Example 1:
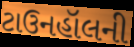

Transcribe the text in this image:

ટાઉનહૉલની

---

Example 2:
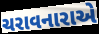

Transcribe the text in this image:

ચરાવનારાએ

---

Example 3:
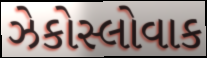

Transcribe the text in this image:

ઝેકોસ્લોવાક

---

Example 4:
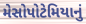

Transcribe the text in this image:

મેસોપોટેમિયાનું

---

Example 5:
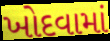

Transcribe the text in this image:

ખોદવામાં